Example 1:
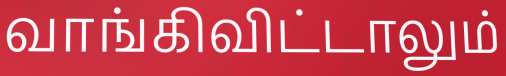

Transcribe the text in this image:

வாங்கிவிட்டாலும்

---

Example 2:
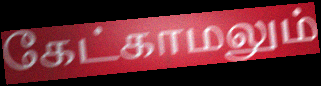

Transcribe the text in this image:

கேட்காமலும்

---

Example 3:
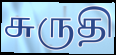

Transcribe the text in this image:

சுருதி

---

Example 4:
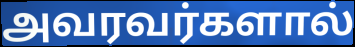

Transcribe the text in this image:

அவரவர்களால்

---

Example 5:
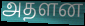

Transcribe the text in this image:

அதளன